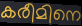
കരീമിനെ